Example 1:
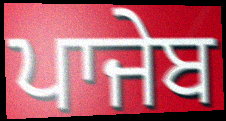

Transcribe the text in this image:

ਪਾਜੇਬ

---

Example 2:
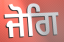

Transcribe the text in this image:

ਜੋਗਿ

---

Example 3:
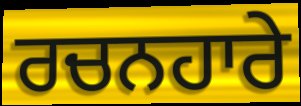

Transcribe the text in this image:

ਰਚਨਹਾਰੇ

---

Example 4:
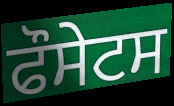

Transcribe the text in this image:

ਫੌਸੇਟਸ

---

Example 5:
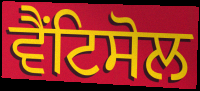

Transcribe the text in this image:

ਵੈਂਟਿਸੋਲ